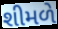
શીમળે